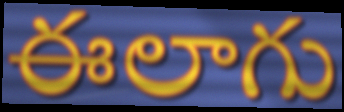
ఈలాగు